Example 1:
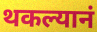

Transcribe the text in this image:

थकल्यानं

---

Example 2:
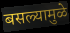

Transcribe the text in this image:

बसल्यामुळे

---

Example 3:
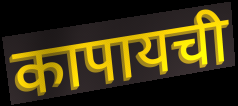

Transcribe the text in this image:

कापायची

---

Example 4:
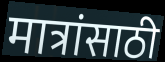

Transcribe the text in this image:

मात्रांसाठी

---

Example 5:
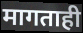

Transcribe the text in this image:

मागताही